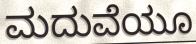
ಮದುವೆಯೂ